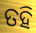
ତହି